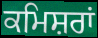
ਕਮਿਸ਼ਰਾਂ